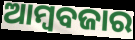
ଆମ୍ୱବଜାର